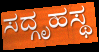
ಸದ್ಗೃಹಸ್ಥ